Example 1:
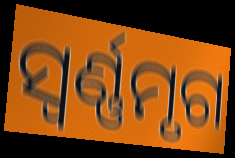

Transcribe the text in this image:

ସ୍ଵର୍ଣ୍ଣମୃଗ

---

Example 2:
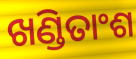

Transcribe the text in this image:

ଖଣ୍ଡିତାଂଶ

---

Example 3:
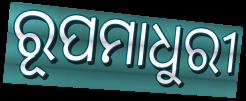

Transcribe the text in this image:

ରୂପମାଧୁରୀ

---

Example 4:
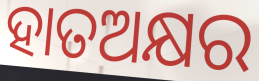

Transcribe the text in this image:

ହାତଅକ୍ଷର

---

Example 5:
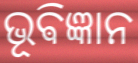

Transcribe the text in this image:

ଭୂଵିଜ୍ଞାନ